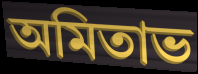
অমিতাভ